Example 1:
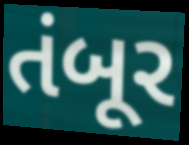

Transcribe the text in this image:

તંબૂર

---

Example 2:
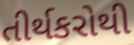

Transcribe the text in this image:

તીર્થકરોથી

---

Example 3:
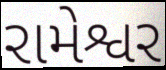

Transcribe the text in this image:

રામેશ્વર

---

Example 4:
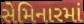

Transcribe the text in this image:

સેમિનારમાં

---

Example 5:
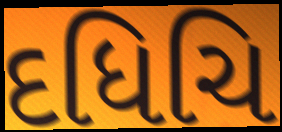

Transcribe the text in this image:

દધિચિ